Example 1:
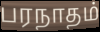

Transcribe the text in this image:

பரநாதம்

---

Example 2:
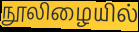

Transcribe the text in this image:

நூலிழையில்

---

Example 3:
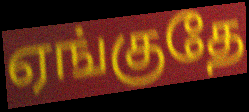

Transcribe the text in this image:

ஏங்குதே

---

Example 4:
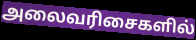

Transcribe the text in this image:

அலைவரிசைகளில்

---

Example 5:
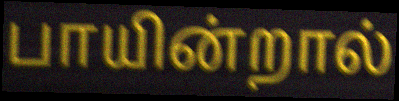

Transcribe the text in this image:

பாயின்றால்